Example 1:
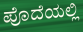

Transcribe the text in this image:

ಪೊದೆಯಲ್ಲಿ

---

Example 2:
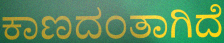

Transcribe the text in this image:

ಕಾಣದಂತಾಗಿದೆ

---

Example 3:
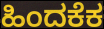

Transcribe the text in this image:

ಹಿಂದಕೆಕ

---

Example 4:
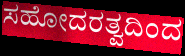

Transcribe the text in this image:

ಸಹೋದರತ್ವದಿಂದ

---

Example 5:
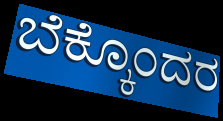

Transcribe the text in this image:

ಬೆಕ್ಕೊಂದರ